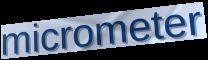
micrometer